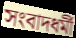
সংবাদধর্মী